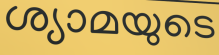
ശ്യാമയുടെ